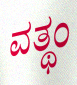
ವತ್ಥಂ